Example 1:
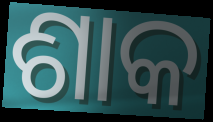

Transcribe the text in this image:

ଶାକ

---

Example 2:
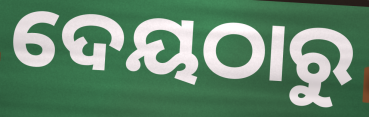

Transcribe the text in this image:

ଦେୟଠାରୁ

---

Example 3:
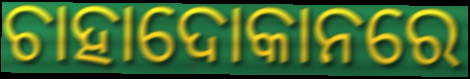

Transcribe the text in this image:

ଚାହାଦୋକାନରେ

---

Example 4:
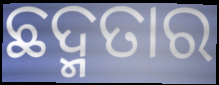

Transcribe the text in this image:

ଛଦ୍ମତାର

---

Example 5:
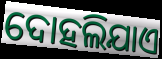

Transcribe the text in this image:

ଦୋହଲିଯାଏ